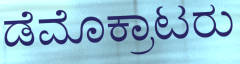
ಡೆಮೊಕ್ರಾಟರು